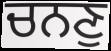
ਚਨਣੁ